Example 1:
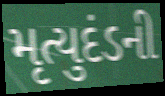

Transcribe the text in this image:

મૃત્યુદંડની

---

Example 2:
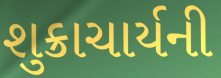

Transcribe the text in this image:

શુક્રાચાર્યની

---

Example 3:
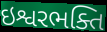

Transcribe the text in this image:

ઇશ્વરભક્તિ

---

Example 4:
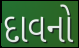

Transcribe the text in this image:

દાવનો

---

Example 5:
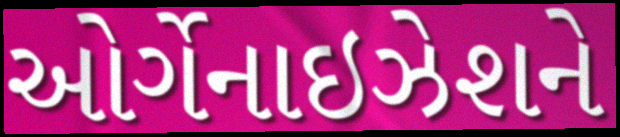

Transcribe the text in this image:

ઓર્ગેનાઇઝેશને